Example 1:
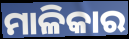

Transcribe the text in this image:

ମାଳିକାର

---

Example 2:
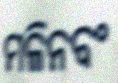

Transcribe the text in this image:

ମଳିନବଂ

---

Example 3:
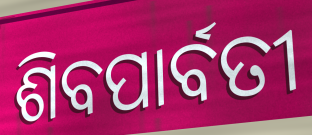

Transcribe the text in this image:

ଶିବପାର୍ବତୀ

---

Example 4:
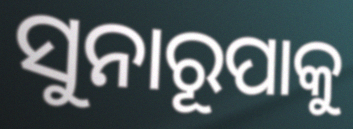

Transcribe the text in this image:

ସୁନାରୂପାକୁ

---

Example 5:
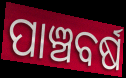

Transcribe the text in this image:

ପାଞ୍ଚବର୍ଷ